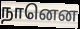
நானென